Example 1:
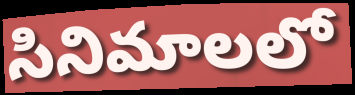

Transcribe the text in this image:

సినిమాలలో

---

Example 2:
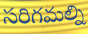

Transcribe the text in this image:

సరిగమల్ని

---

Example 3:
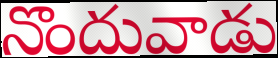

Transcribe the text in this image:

నొందువాడు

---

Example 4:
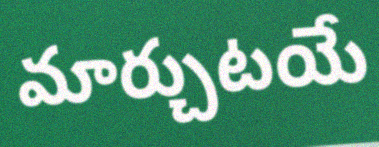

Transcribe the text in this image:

మార్చుటయే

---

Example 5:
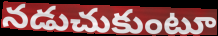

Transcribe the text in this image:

నడుచుకుంటూ